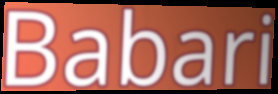
Babari